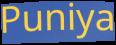
Puniya